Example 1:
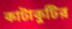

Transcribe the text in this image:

কাটাকুটির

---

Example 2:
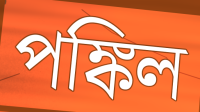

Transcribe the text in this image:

পঙ্কিল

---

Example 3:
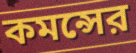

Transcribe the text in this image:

কমন্সের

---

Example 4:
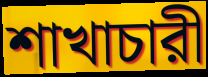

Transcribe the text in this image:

শাখাচারী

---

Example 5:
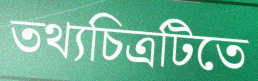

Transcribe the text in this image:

তথ্যচিত্রটিতে